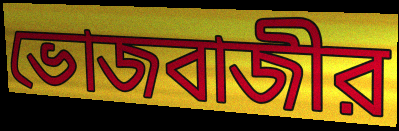
ভোজবাজীর